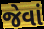
જેવાં